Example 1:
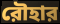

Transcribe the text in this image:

রৌহার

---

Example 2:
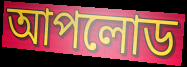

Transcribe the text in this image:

আপলোড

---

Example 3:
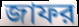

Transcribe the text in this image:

জাফর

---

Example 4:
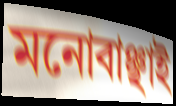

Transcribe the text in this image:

মনোবাঞ্ছাই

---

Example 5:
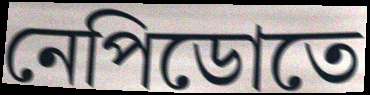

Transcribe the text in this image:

নেপিডোতে